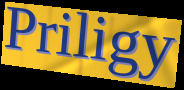
Priligy